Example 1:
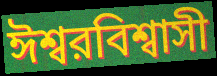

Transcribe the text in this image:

ঈশ্বরবিশ্বাসী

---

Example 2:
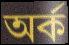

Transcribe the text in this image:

অর্ক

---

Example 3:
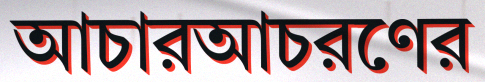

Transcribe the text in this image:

আচারআচরণের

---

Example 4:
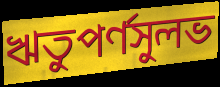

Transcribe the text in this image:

ঋতুপর্ণসুলভ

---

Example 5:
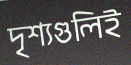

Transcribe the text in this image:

দৃশ্যগুলিই